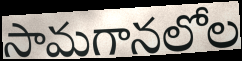
సామగానలోల